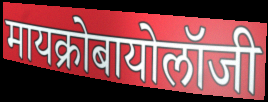
मायक्रोबायोलॉजी